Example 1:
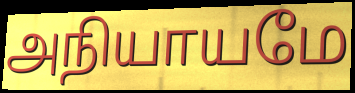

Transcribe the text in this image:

அநியாயமே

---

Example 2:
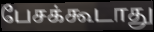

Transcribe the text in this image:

பேசக்கூடாது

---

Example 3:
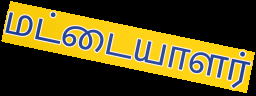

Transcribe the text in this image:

மட்டையாளர்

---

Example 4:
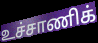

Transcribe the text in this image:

உச்சாணிக்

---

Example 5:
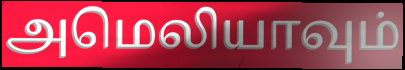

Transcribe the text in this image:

அமெலியாவும்